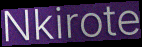
Nkirote